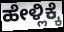
ಹೇಳ್ಲಿಕ್ಕೆ